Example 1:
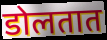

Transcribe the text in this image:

डोलतात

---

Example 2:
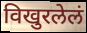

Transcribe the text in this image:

विखुरलेलं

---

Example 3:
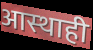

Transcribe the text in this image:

आस्थाही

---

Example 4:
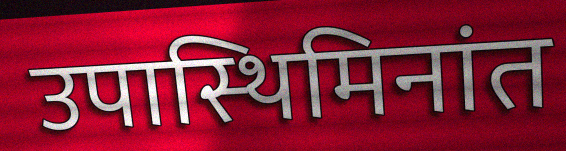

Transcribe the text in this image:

उपास्थिमिनांत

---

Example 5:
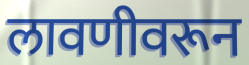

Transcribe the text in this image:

लावणीवरून